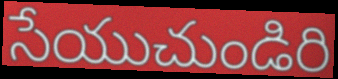
సేయుచుండిరి